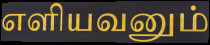
எளியவனும்